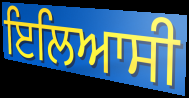
ਇਲਿਆਸੀ